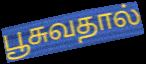
பூசுவதால்